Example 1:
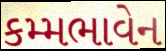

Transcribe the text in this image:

કમ્મભાવેન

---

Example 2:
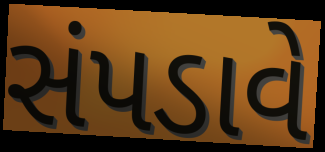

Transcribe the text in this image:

સંપડાવે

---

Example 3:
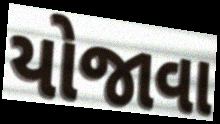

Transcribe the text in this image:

યોજાવા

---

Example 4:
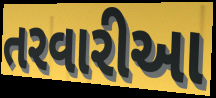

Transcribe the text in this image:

તરવારીઆ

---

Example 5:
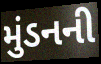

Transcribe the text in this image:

મુંડનની